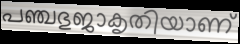
പഞ്ചഭുജാകൃതിയാണ്